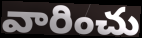
వారించు